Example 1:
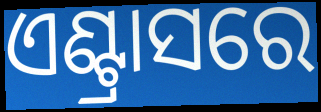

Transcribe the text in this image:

ଏଣ୍ଟ୍ରାସରେ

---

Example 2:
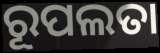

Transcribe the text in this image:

ରୂପଲତା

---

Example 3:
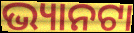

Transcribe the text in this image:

ଭ୍ୟାନଟା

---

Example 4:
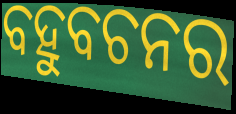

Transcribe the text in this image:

ବହୁବଚନର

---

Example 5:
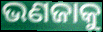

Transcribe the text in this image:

ଭଣଜାକୁ